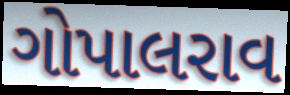
ગોપાલરાવ